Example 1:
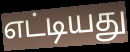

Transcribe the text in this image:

எட்டியது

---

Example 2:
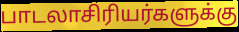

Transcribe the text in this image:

பாடலாசிரியர்களுக்கு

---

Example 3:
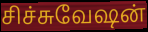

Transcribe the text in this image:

சிச்சுவேஷன்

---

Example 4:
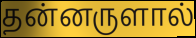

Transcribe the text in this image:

தன்னருளால்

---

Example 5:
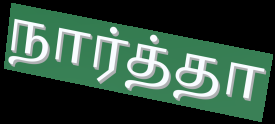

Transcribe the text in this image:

நார்த்தா